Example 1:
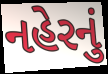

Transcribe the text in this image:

નહેરનું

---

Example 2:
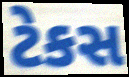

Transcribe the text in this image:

ટેકસ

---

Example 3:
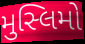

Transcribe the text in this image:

મુસ્લિમો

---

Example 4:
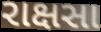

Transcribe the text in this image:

રાક્ષસા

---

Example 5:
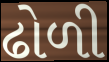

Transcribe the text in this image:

ઢોળી